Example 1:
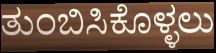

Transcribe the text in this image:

ತುಂಬಿಸಿಕೊಳ್ಳಲು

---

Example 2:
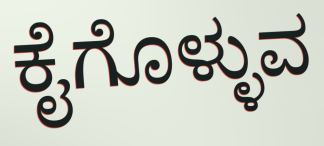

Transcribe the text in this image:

ಕೈಗೊಳ್ಳುವ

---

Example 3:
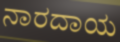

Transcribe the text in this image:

ನಾರದಾಯ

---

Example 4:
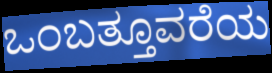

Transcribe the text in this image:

ಒಂಬತ್ತೂವರೆಯ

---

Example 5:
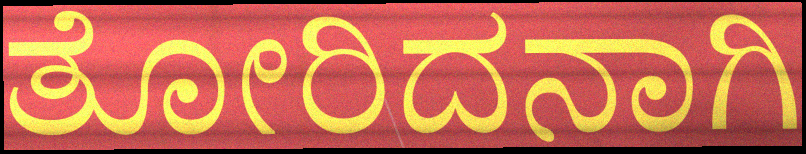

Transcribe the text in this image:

ತೋರಿದನಾಗಿ